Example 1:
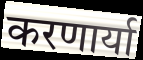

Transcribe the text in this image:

करणार्या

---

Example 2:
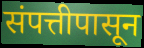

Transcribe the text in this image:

संपत्तीपासून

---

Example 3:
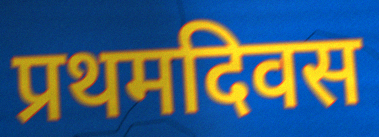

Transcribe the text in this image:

प्रथमदिवस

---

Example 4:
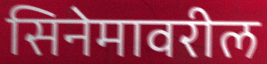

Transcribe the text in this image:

सिनेमावरील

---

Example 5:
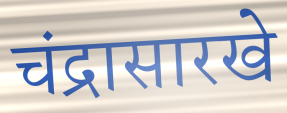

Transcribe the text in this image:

चंद्रासारखे